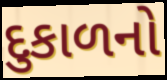
દુકાળનો